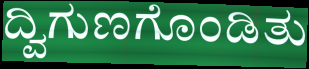
ದ್ವಿಗುಣಗೊಂಡಿತು